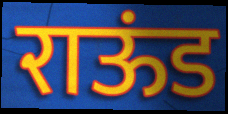
राऊंड